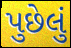
પુછેલું